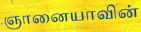
ஞானையாவின்